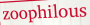
zoophilous